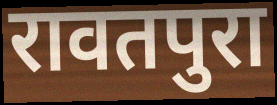
रावतपुरा